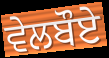
ਵੇਲਬੌਏ